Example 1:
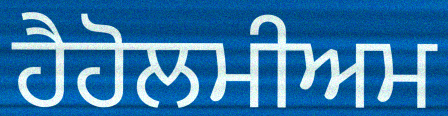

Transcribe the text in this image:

ਹੈਹੋਲਮੀਅਮ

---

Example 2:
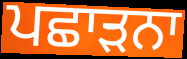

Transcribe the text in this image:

ਪਛਾੜਨਾ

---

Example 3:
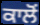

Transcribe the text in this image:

ਕਾਲੋਂ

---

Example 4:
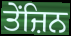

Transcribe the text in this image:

ਤੇਂਜ਼ਿਨ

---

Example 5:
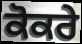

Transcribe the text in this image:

ਕੋਕਰੇ